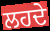
ਲਹਦੇ